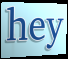
hey